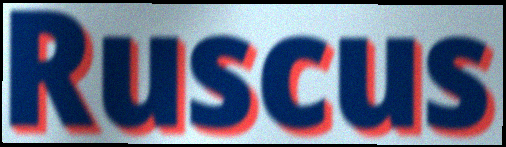
Ruscus